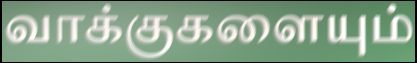
வாக்குகளையும்